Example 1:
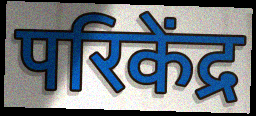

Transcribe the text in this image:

परिकेंद्र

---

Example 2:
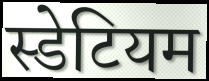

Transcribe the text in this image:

स्डेटियम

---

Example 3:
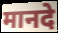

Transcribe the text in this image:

मानदे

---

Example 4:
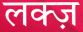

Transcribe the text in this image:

लक्ज़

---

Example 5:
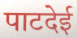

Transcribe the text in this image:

पाटदेई